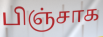
பிஞ்சாக